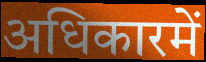
अधिकारमें